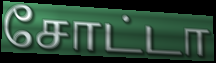
சோட்டா